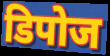
डिपोज